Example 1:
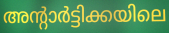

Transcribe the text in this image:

അന്റാർട്ടിക്കയിലെ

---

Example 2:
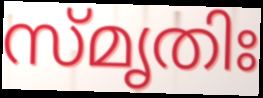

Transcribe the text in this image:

സ്മൃതിഃ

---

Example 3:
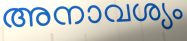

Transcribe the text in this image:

അനാവശ്യം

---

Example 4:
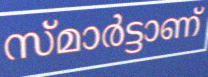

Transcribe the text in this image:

സ്മാർട്ടാണ്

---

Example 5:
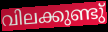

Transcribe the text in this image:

വിലക്കുണ്ടു്